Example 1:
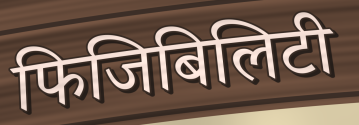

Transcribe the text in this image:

फिजिबिलिटी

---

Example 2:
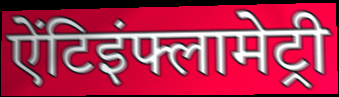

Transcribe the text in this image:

ऐंटिइंफ्लामेट्री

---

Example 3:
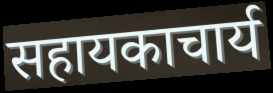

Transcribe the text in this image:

सहायकाचार्य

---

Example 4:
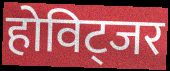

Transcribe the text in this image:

होविट्जर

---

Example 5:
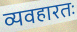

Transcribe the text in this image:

व्यवहारतः